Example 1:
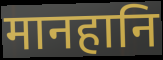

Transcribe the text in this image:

मानहानि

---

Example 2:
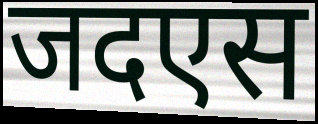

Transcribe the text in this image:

जदएस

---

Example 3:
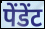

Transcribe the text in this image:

पेंडेंट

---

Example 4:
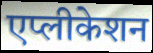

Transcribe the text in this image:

एप्लीकेशन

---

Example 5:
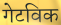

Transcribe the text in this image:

गेटविक